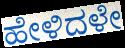
ಹೇಳಿದಳೇ